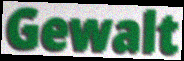
Gewalt